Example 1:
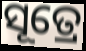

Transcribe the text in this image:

ସୂତ୍ରେ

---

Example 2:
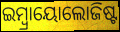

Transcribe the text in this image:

ଇମ୍ବ୍ରାୟୋଲୋଜିଷ୍ଟ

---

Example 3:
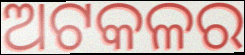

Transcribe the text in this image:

ଅଟକଳର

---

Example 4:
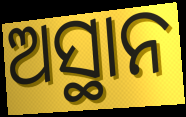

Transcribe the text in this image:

ଅସ୍ଥାନ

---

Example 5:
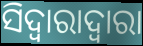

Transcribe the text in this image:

ସିଦ୍ୱାରାଦ୍ୱାରା